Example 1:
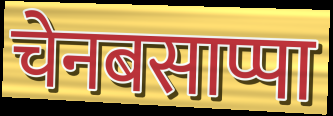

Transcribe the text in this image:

चेनबसाप्पा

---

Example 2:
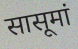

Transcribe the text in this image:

सासूमां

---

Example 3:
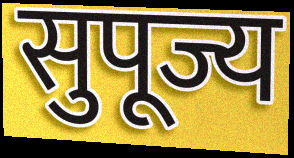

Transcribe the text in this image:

सुपूज्य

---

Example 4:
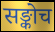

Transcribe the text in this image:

सङ्कोच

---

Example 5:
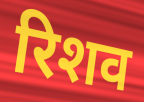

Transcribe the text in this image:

रिशव